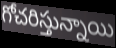
గోచరిస్తున్నాయి